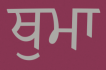
ਥੁਮਾ